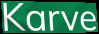
Karve